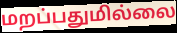
மறப்பதுமில்லை